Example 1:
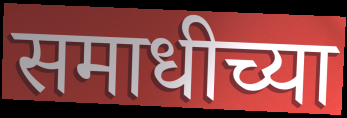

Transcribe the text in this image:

समाधीच्या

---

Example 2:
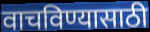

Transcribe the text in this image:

वाचविण्यासाठी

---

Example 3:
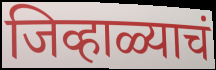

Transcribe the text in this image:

जिव्हाळ्याचं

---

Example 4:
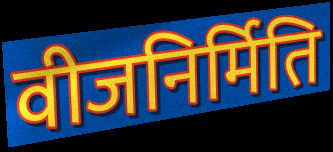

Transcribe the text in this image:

वीजनिर्मिति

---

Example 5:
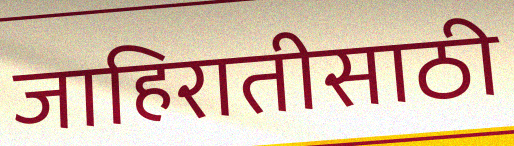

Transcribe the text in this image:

जाहिरातीसाठी